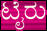
ಟೈರು